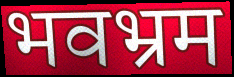
भवभ्रम